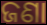
ଜଣା